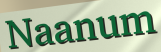
Naanum